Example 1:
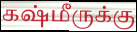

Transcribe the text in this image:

கஷ்மீருக்கு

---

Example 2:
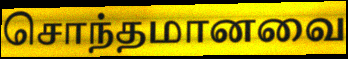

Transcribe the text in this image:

சொந்தமானவை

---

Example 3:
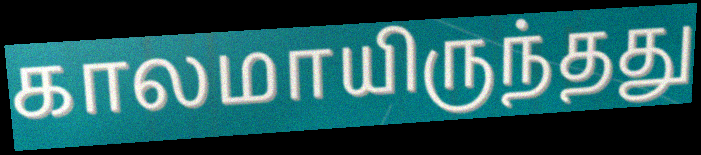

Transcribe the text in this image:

காலமாயிருந்தது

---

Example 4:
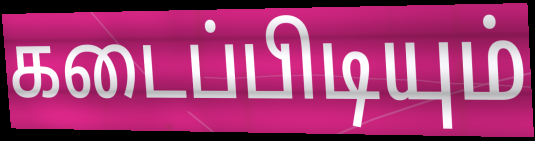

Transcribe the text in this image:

கடைப்பிடியும்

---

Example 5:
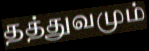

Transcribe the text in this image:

தத்துவமும்